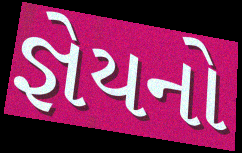
જ્ઞેયનો